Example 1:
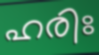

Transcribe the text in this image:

ഹരിഃ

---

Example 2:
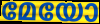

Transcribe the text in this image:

മേയോ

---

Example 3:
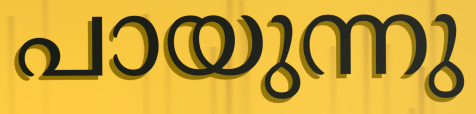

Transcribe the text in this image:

പായുന്നു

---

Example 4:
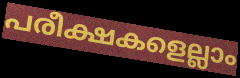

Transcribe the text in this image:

പരീക്ഷകളെല്ലാം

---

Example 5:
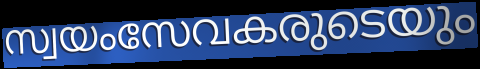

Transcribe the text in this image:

സ്വയംസേവകരുടെയും